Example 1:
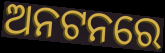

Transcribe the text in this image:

ଅନଟନରେ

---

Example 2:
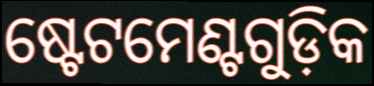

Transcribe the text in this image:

ଷ୍ଟେଟମେଣ୍ଟଗୁଡ଼ିକ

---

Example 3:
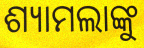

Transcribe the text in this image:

ଶ୍ୟାମଲାଙ୍କୁ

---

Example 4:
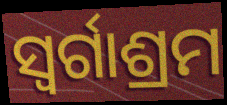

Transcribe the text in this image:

ସ୍ୱର୍ଗାଶ୍ରମ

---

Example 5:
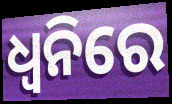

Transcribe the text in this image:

ଧ୍ୱନିରେ